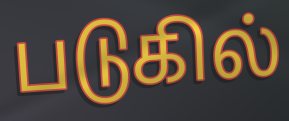
படுகில்